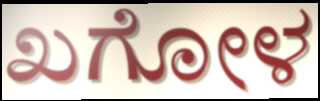
ಖಗೋಳ